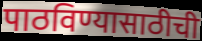
पाठविण्यासाठीची